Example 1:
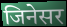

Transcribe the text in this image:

जिनेसर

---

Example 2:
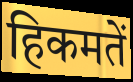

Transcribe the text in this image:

हिकमतें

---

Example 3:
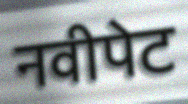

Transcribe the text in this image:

नवीपेट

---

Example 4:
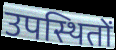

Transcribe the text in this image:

उपस्थितों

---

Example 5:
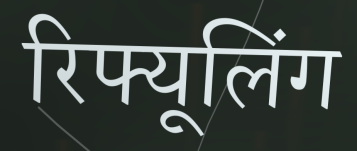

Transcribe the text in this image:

रिफ्यूलिंग